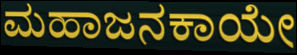
ಮಹಾಜನಕಾಯೇ